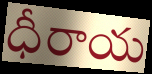
ధీరాయ